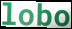
lobo